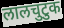
लालचुटुक